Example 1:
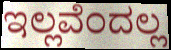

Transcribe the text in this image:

ಇಲ್ಲವೆಂದಲ್ಲ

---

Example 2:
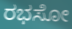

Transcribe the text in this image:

ರಭಸೋ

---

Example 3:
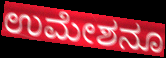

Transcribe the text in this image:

ಉಮೇಶನೂ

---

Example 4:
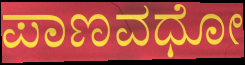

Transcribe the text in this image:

ಪಾಣವಧೋ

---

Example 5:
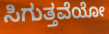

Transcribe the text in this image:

ಸಿಗುತ್ತವೆಯೋ